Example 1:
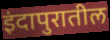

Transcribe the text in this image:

इंदापुरातील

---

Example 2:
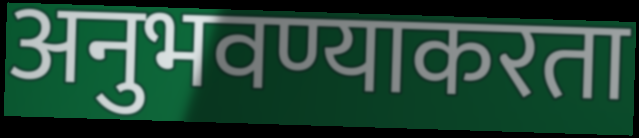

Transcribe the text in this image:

अनुभवण्याकरता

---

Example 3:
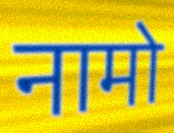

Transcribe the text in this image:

नामो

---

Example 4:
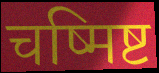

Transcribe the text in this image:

चष्मिष्ट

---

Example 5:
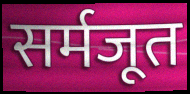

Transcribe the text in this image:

सर्मजूत